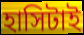
হাসিটাই